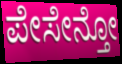
ಪೇಸೇನ್ತೋ